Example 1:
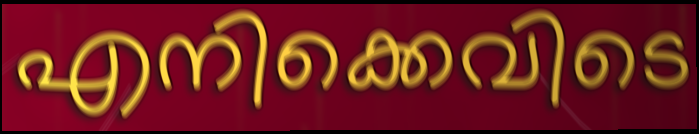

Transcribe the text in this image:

എനിക്കെവിടെ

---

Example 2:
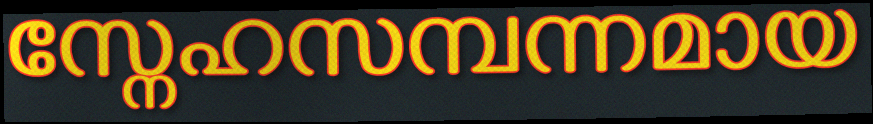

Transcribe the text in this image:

സ്നേഹസമ്പന്നമായ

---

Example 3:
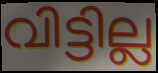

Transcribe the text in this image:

വിട്ടില്ല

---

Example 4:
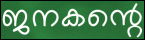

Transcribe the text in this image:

ജനകന്റെ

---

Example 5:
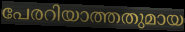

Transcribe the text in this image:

പേരറിയാത്തതുമായ